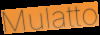
Mulatto